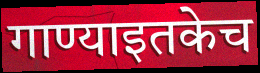
गाण्याइतकेच